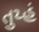
તુય્હં